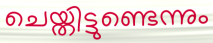
ചെയ്തിട്ടുണ്ടെന്നും